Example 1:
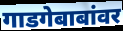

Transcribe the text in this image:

गाडगेबाबांवर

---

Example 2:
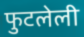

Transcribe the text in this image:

फुटलेली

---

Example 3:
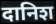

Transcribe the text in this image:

दानिश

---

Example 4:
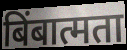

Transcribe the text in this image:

बिंबात्मता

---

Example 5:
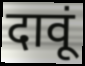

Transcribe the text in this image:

दावूं